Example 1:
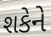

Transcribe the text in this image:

શકેને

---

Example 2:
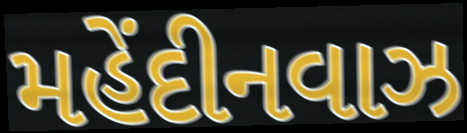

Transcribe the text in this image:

મહેંદીનવાઝ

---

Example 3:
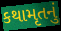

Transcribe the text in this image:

કથામૃતનું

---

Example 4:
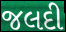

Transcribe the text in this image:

જલદી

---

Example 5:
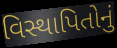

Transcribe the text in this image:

વિસ્થાપિતોનું